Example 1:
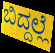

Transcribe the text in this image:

ಬಿದ್ದಲ್ಲೆ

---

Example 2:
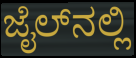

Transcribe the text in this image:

ಜೈಲ್‌ನಲ್ಲಿ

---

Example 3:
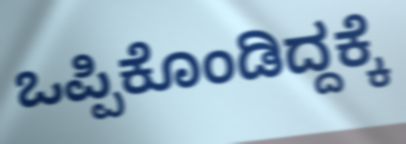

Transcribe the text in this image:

ಒಪ್ಪಿಕೊಂಡಿದ್ದಕ್ಕೆ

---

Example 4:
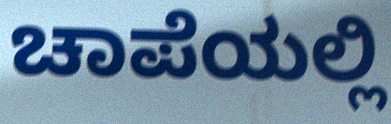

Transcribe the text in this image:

ಚಾಪೆಯಲ್ಲಿ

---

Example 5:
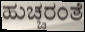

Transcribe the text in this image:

ಹುಚ್ಚರಂತೆ